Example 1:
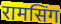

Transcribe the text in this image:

रामसिंग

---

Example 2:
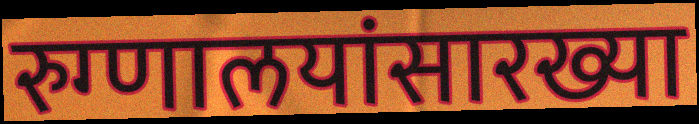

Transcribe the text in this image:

रुग्णालयांसारख्या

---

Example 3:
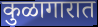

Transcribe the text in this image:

कुळागारात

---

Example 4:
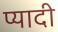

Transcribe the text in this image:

प्यादी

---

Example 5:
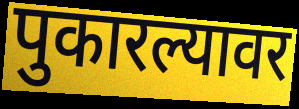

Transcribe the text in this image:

पुकारल्यावर